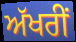
ਅੱਖਰੀਂ